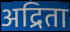
अद्रिता